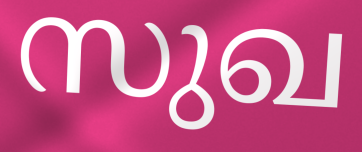
സുഖ